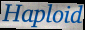
Haploid